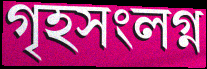
গৃহসংলগ্ন